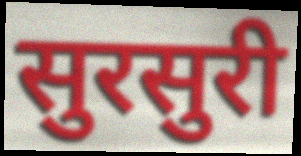
सुरसुरी